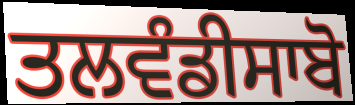
ਤਲਵੰਡੀਸਾਬੋ